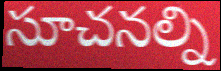
సూచనల్ని